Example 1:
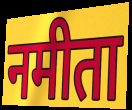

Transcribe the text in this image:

नमीता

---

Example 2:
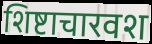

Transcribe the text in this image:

शिष्टाचारवश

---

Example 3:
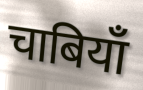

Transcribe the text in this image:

चाबियाँ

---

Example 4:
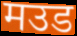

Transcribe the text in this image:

मउड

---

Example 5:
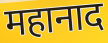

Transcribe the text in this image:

महानाद